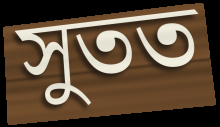
সুতত